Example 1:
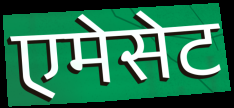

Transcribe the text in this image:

एमेसेट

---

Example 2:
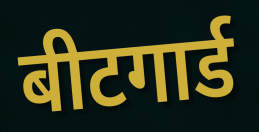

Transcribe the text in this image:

बीटगार्ड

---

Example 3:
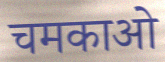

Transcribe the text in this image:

चमकाओ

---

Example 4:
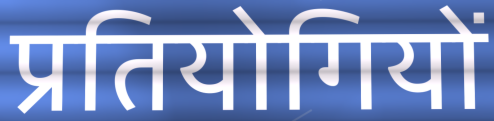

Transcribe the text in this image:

प्रतियोगियों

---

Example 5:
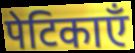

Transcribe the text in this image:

पेटिकाएँ